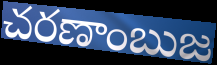
చరణాంబుజ